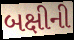
બક્ષીની